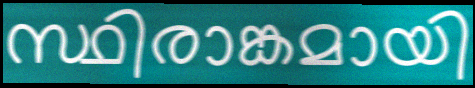
സ്ഥിരാങ്കമായി